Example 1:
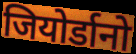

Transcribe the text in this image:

जियोर्डानो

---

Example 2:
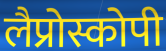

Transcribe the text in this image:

लैप्रोस्कोपी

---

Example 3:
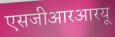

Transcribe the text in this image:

एसजीआरआरयू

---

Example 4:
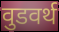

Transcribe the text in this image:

वुडवर्थ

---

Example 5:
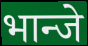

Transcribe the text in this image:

भान्जे